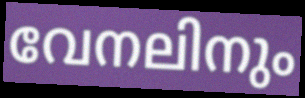
വേനലിനും